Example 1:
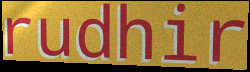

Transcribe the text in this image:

rudhir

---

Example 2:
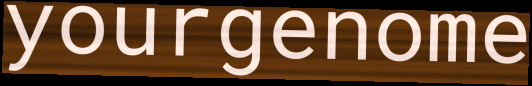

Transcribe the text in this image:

yourgenome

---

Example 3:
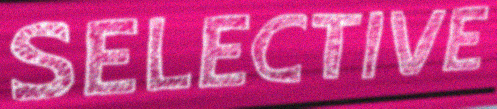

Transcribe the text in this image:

SELECTIVE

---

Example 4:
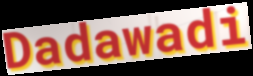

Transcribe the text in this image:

Dadawadi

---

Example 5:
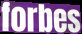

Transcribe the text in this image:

forbes